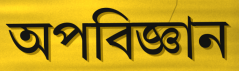
অপবিজ্ঞান